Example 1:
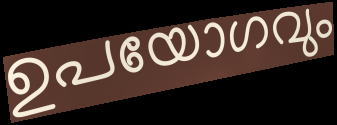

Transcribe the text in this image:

ഉപയോഗവും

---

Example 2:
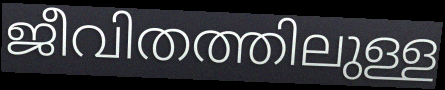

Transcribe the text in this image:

ജീവിതത്തിലുള്ള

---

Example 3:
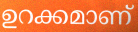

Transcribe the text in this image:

ഉറക്കമാണ്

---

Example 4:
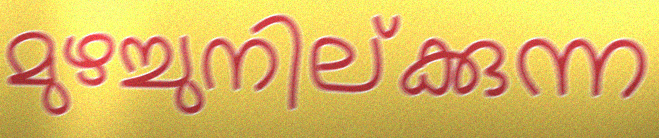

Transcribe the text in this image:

മുഴച്ചുനില്ക്കുന്ന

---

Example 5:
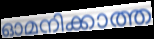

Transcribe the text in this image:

ഓമനിക്കാത്ത